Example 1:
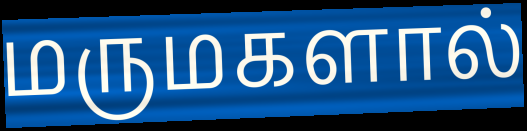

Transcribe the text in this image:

மருமகளால்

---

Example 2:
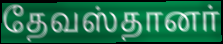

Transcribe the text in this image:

தேவஸ்தானர்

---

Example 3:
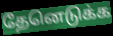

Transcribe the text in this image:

தேனெடுக்க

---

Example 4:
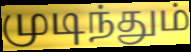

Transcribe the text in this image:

முடிந்தும்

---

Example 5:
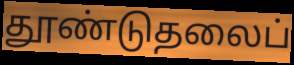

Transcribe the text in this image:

தூண்டுதலைப்